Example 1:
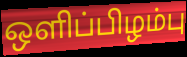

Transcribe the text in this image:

ஒளிப்பிழம்பு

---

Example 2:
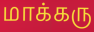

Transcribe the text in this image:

மாக்கரு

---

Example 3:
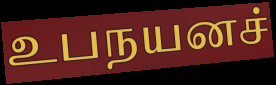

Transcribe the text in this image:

உபநயனச்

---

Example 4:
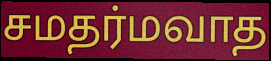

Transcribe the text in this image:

சமதர்மவாத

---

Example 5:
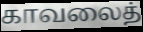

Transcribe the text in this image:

காவலைத்